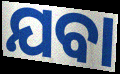
ଯବା